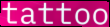
tattoo